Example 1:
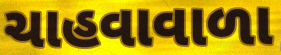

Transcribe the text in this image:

ચાહવાવાળા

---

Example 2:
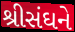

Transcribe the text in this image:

શ્રીસંઘને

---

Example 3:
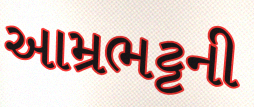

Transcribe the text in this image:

આમ્રભટ્ટની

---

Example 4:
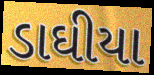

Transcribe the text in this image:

ડાઘીયા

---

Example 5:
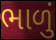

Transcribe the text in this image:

ભાળું